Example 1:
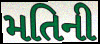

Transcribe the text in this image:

મતિની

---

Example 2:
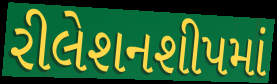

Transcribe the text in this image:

રીલેશનશીપમાં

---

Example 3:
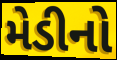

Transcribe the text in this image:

મેડીનો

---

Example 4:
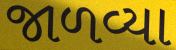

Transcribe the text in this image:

જાળવ્યા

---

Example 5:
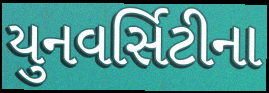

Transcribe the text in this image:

યુનવર્સિટીના